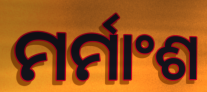
ମର୍ମାଂଶ